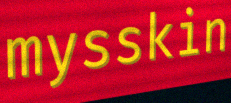
mysskin